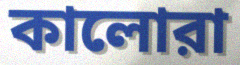
কালোরা